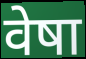
वेषा